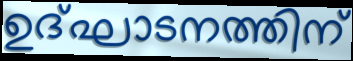
ഉദ്ഘാടനത്തിന്